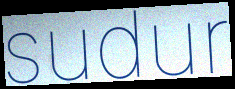
sudur